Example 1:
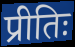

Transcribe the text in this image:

प्रीतिः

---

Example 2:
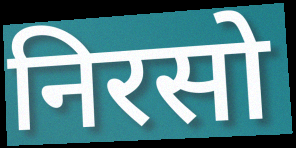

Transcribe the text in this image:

निरसो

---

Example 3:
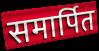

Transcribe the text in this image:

समार्पित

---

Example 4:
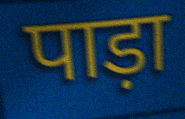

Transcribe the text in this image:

पाड़ा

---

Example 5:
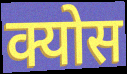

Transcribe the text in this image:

क्योस